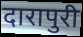
दारापुरी